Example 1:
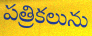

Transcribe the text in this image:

పత్రికలును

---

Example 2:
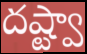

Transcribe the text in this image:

దష్ట్వా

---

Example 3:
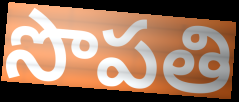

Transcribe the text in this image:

సొపతి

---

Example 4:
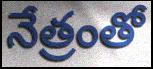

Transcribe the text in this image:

నేత్రంతో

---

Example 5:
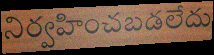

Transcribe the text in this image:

నిర్వహించబడలేదు